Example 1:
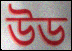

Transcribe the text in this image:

উড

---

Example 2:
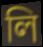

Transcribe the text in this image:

লি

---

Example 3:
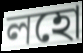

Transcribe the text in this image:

লহো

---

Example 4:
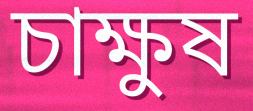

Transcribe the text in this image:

চাক্ষুষ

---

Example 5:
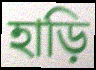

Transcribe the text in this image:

হাড়ি